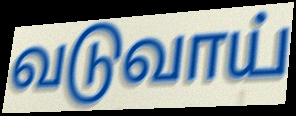
வடுவாய்